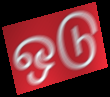
ஒடு